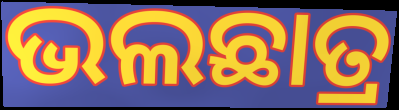
ଭଲଛାତ୍ର